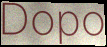
Dopo